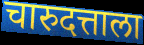
चारुदत्ताला